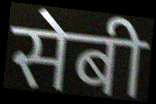
सेबी